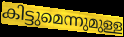
കിട്ടുമെന്നുമുള്ള